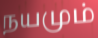
நயமும்